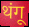
थंगू